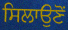
ਸਿਲਾਉਣੋਂ